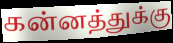
கன்னத்துக்கு